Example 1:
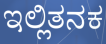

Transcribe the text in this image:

ಇಲ್ಲಿತನಕ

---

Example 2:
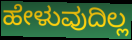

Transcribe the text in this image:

ಹೇಳುವುದಿಲ್ಲ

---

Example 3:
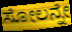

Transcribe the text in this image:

ಸೋಲನ್ನೇ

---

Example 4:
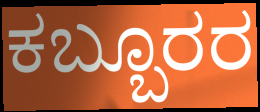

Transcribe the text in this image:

ಕಬ್ಬೂರರ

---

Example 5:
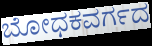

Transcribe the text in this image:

ಬೋಧಕವರ್ಗದ